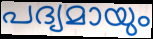
പദ്യമായും